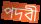
পদবী